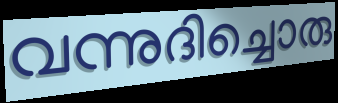
വന്നുദിച്ചൊരു